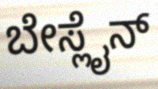
ಬೇಸ್ಲೈನ್